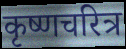
कृष्णचरित्र